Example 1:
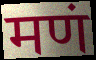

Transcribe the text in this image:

मणं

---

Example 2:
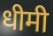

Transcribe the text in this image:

धीमी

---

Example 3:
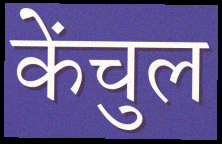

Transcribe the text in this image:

केंचुल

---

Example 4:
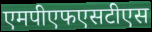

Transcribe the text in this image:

एमपीएफएसटीएस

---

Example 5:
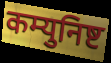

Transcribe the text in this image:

कम्युनिष्ट